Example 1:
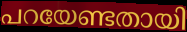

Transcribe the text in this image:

പറയേണ്ടതായി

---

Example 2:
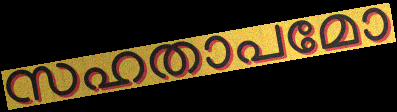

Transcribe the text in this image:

സഹതാപമോ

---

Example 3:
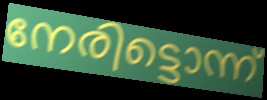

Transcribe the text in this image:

നേരിട്ടൊന്ന്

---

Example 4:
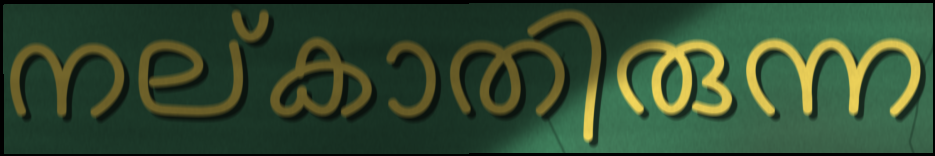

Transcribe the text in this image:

നല്കാതിരുന്ന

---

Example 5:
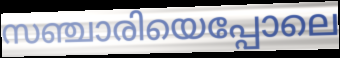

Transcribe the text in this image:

സഞ്ചാരിയെപ്പോലെ